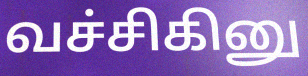
வச்சிகினு